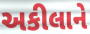
અકીલાને